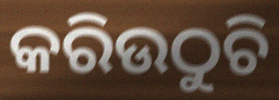
କରିଉଠୁଚି